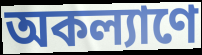
অকল্যাণে